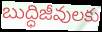
బుద్ధిజీవులకు